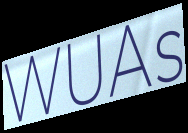
WUAs